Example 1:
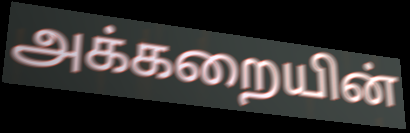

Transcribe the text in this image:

அக்கறையின்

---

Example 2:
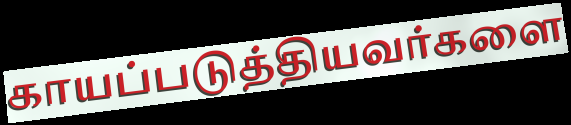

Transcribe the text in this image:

காயப்படுத்தியவர்களை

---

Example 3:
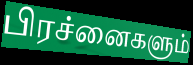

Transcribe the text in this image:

பிரச்னைகளும்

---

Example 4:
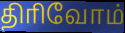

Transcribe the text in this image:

திரிவோம்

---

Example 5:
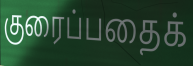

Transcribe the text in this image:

குரைப்பதைக்